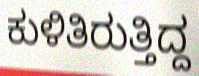
ಕುಳಿತಿರುತ್ತಿದ್ದ